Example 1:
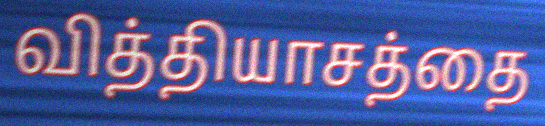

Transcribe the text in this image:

வித்தியாசத்தை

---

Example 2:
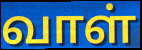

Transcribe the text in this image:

வாள்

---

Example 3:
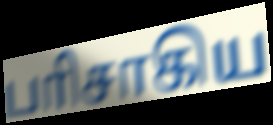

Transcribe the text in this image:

பரிசாகிய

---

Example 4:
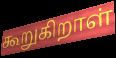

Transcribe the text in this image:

கூறுகிறாள்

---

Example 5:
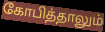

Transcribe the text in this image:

கோபித்தாலும்